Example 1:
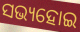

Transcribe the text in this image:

ସଭ୍ୟହୋଇ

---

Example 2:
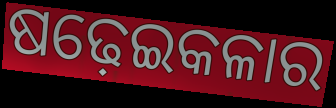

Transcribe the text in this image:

ଷଢ଼େଇକଳାର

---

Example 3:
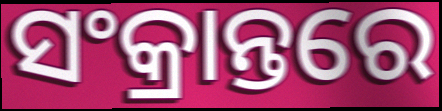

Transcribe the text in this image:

ସଂକ୍ରାନ୍ତରେ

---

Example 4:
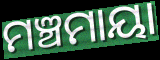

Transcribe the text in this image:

ମଞ୍ଚମାୟା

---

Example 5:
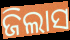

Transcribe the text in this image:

ଜିଲାସ